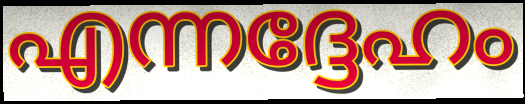
എന്നദ്ദേഹം